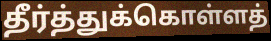
தீர்த்துக்கொள்ளத்